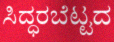
ಸಿದ್ಧರಬೆಟ್ಟದ